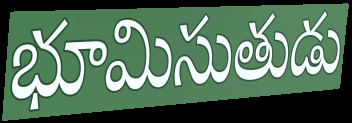
భూమిసుతుడు